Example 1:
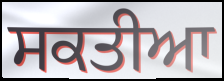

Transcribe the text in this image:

ਸਕਤੀਆ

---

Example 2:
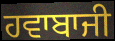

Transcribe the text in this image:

ਹਵਾਬਾਜੀ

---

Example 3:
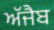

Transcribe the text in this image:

ਅੱਜੈਬ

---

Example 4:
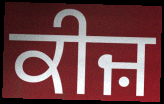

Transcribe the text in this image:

ਕੀਜ਼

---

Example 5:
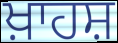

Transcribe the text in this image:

ਖ਼ਾਹਸ਼